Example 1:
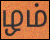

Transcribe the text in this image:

ழம்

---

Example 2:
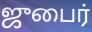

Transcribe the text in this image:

ஜுபைர்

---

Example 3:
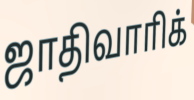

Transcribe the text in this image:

ஜாதிவாரிக்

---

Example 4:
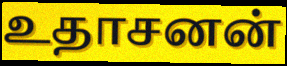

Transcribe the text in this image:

உதாசனன்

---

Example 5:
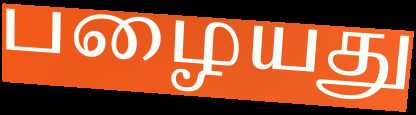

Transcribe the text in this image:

பழையது